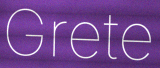
Grete